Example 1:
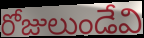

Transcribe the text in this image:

రోజులుండేవి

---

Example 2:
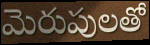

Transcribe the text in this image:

మెరుపులతో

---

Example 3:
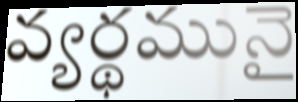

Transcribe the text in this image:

వ్యర్థమునై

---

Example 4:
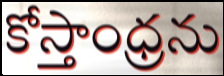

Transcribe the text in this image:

కోస్తాంధ్రను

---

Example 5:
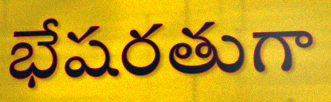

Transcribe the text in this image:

భేషరతుగా